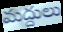
మద్దులు